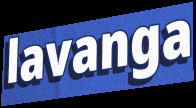
lavanga